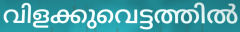
വിളക്കുവെട്ടത്തിൽ